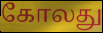
கோலது